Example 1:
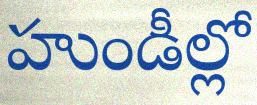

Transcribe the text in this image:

హుండీల్లో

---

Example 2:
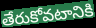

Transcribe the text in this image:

తేరుకోవటానికి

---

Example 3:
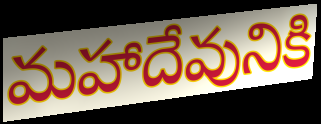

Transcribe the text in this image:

మహాదేవునికి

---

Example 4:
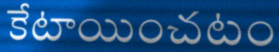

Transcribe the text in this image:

కేటాయించటం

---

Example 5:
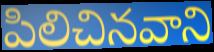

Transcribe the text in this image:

పిలిచినవాని